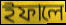
ইফালে